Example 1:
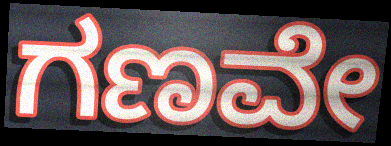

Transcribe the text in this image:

ಗಣವೇ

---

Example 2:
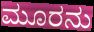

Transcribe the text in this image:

ಮೂರನು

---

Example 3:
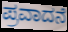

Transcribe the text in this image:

ಪ್ರವಾದನೆ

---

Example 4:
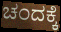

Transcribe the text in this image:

ಚಂದಕ್ಕೆ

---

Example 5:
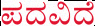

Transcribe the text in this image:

ಪದವಿದೆ